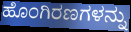
ಹೊಂಗಿರಣಗಳನ್ನು